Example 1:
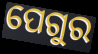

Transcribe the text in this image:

ପେଗୁର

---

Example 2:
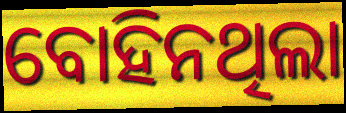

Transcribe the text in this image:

ବୋହିନଥିଲା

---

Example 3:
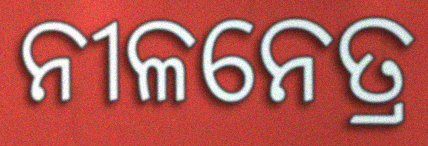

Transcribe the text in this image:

ନୀଳନେତ୍ର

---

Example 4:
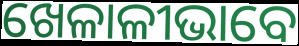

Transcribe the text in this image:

ଖେଳାଳୀଭାବେ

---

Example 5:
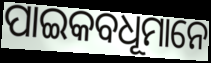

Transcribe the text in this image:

ପାଇକବଧୂମାନେ